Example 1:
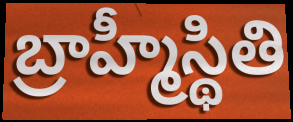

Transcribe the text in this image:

బ్రాహ్మీస్థితి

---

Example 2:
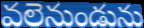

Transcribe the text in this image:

వలెనుండును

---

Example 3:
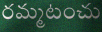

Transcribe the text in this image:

రమ్మటంచు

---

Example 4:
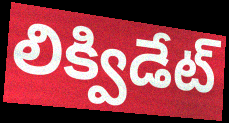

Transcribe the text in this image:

లిక్విడేట్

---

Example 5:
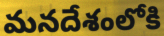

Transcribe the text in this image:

మనదేశంలోకి